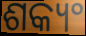
ଶକ୍ୟଂ